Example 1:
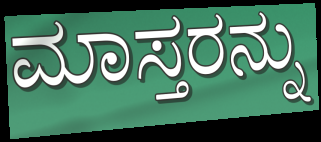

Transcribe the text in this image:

ಮಾಸ್ತರನ್ನು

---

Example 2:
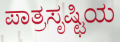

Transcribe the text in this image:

ಪಾತ್ರಸೃಷ್ಟಿಯ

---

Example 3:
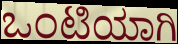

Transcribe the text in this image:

ಒಂಟಿಯಾಗಿ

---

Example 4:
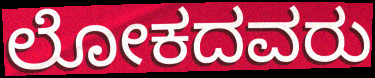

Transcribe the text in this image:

ಲೋಕದವರು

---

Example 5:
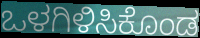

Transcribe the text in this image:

ಒಳಗಿಳಿಸಿಕೊಂಡ